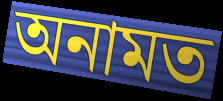
অনামত